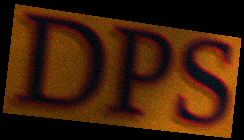
DPS